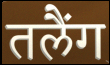
तलैंग